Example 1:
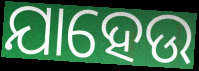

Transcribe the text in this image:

ଯାହେଉ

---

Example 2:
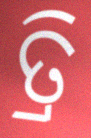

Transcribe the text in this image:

ତ୍ରି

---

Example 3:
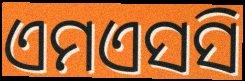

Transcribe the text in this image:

ଏମଏସସି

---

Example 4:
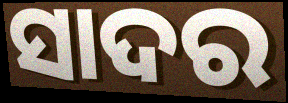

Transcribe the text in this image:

ସାଦର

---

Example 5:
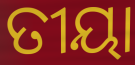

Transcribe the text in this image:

ତୀୟା